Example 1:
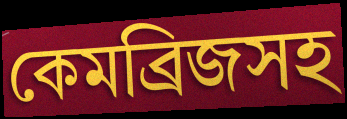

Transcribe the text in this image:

কেমব্রিজসহ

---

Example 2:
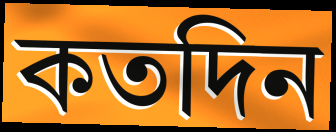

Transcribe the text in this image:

কতদিন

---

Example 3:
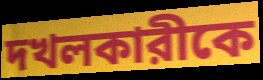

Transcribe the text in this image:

দখলকারীকে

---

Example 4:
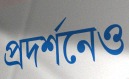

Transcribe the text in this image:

প্রদর্শনেও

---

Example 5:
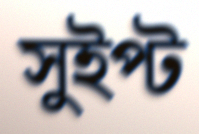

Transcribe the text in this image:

সুইপ্ট